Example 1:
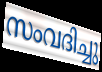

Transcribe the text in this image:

സംവദിച്ചു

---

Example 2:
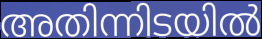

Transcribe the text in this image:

അതിന്നിടയിൽ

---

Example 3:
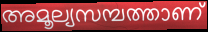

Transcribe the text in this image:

അമൂല്യസമ്പത്താണ്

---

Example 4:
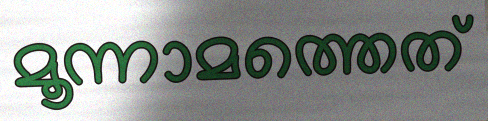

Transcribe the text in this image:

മൂന്നാമത്തെത്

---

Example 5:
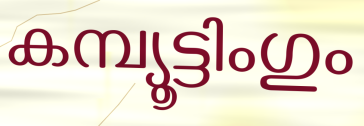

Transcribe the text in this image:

കമ്പ്യൂട്ടിംഗും